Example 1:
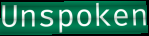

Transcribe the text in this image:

Unspoken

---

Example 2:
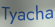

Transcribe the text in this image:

Tyacha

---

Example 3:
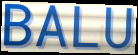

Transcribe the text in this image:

BALU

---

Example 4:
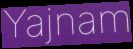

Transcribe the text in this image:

Yajnam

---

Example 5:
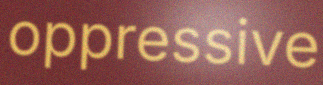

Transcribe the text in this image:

oppressive